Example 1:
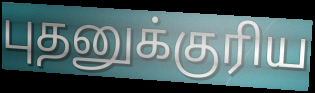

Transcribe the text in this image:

புதனுக்குரிய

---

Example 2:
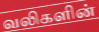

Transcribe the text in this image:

வலிகளின்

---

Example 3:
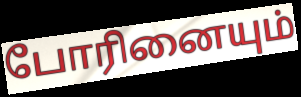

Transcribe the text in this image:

போரினையும்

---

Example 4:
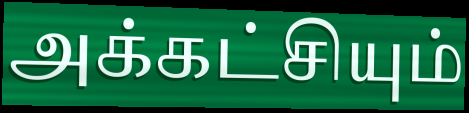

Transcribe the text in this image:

அக்கட்சியும்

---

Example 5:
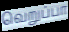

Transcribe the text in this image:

வெறுப்பா